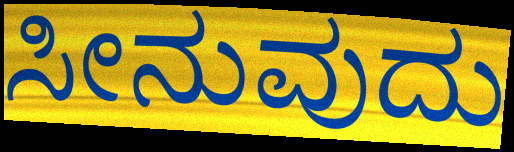
ಸೀನುವುದು